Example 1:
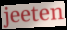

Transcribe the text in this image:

jeeten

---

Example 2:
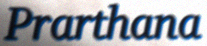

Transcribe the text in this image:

Prarthana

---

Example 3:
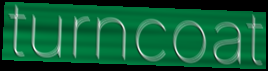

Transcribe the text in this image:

turncoat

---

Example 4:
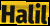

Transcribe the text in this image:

Halil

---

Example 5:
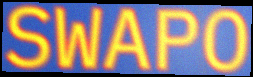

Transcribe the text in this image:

SWAPO